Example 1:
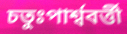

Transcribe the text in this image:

চতুঃপার্শ্ববর্ত্তী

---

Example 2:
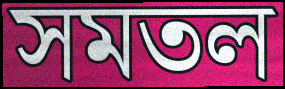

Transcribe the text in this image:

সমতল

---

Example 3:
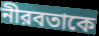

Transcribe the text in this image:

নীরবতাকে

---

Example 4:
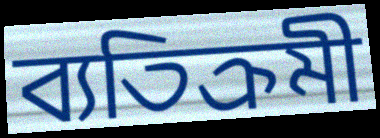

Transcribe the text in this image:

ব্যতিক্রমী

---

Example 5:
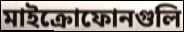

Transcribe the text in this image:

মাইক্রোফোনগুলি